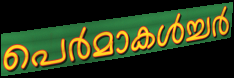
പെർമാകൾച്ചർ